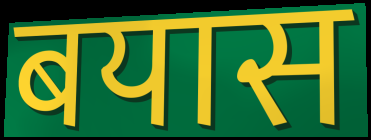
बयास